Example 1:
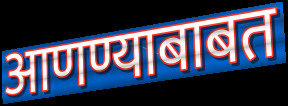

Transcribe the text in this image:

आणण्याबाबत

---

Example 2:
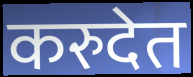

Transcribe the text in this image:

करुदेत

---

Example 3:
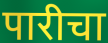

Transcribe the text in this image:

पारीचा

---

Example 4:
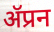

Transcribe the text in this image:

ॲप्रन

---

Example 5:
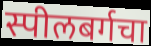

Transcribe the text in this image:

स्पीलबर्गचा